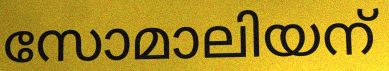
സോമാലിയന്